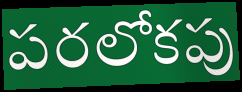
పరలోకపు